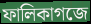
ফালিকাগজে